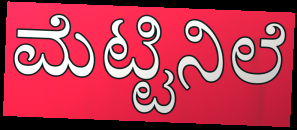
ಮೆಟ್ಟಿನಿಲೆ